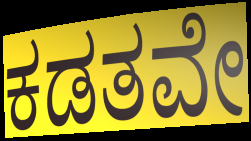
ಕಡತವೇ